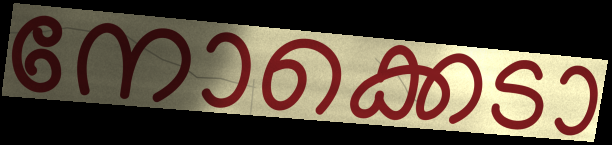
നോക്കെടാ